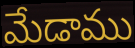
మేడాము